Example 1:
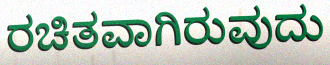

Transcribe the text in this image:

ರಚಿತವಾಗಿರುವುದು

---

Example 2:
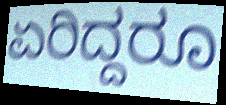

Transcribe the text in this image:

ಏರಿದ್ದರೂ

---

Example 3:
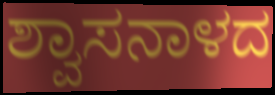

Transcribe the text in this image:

ಶ್ವಾಸನಾಳದ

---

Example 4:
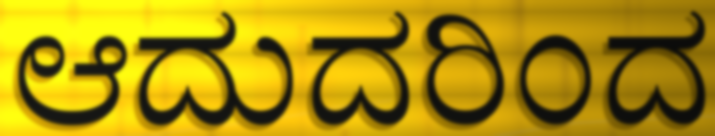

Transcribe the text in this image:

ಆದುದರಿಂದ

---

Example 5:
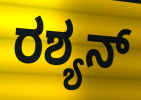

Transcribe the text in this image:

ರಶ್ಯನ್